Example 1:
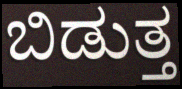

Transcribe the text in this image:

ಬಿಡುತ್ತ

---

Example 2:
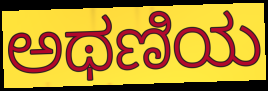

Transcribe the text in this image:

ಅಥಣಿಯ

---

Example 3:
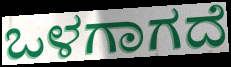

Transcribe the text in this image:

ಒಳಗಾಗದೆ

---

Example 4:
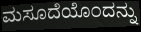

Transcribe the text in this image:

ಮಸೂದೆಯೊಂದನ್ನು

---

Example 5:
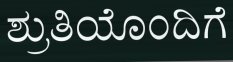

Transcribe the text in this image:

ಶ್ರುತಿಯೊಂದಿಗೆ